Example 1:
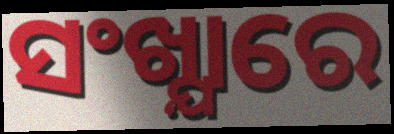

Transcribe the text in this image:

ସଂଖ୍ଯାରେ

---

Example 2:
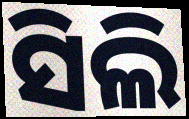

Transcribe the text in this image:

ସିଲି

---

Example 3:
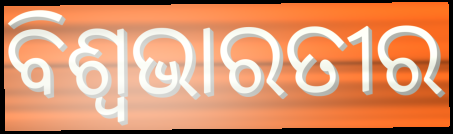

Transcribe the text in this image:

ବିଶ୍ୱଭାରତୀର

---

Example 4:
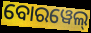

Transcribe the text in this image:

ବୋରୱେଲ୍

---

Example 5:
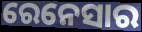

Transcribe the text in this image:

ରେନେସାର